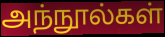
அந்நூல்கள்